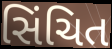
સિંચિત